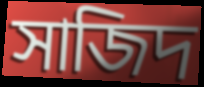
সাজিদ